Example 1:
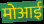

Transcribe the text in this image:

मोआई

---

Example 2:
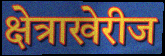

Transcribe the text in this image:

क्षेत्राखेरीज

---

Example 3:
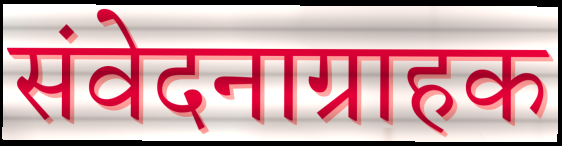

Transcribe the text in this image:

संवेदनाग्राहक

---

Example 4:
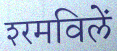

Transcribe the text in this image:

श्रमविलें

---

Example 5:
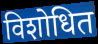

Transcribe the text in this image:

विशोधित